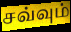
சவ்வும்